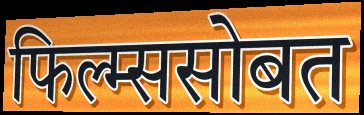
फिल्म्ससोबत